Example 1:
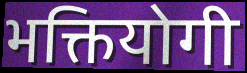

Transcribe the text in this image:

भक्तियोगी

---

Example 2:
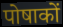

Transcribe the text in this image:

पोषाकों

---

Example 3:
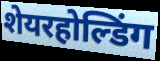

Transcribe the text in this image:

शेयरहोल्डिंग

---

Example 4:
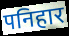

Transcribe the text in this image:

पनिहार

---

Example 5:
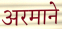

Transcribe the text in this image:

अरमाने